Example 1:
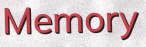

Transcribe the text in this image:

Memory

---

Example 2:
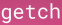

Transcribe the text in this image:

getch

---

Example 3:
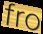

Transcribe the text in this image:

fro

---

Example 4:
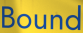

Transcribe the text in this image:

Bound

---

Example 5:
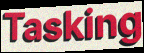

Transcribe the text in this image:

Tasking